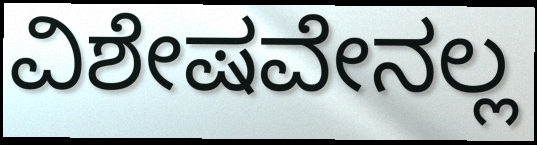
ವಿಶೇಷವೇನಲ್ಲ